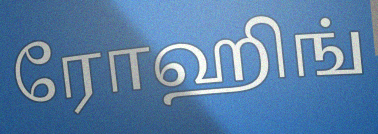
ரோஹிங்